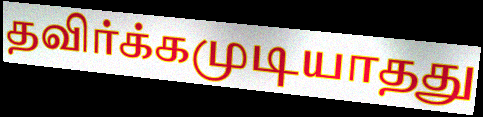
தவிர்க்கமுடியாதது